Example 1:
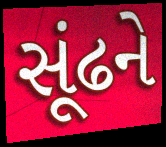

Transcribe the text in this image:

સૂંઢને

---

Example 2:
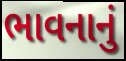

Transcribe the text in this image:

ભાવનાનું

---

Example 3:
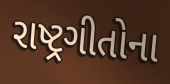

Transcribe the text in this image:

રાષ્ટ્રગીતોના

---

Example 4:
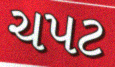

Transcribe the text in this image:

ચપટ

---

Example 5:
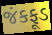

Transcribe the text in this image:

જંકફૂડ